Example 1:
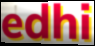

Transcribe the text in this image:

edhi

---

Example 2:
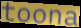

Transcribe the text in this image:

toona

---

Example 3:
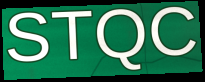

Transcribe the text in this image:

STQC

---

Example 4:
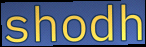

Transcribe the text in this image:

shodh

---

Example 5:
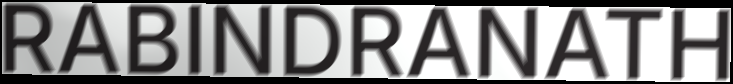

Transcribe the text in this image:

RABINDRANATH